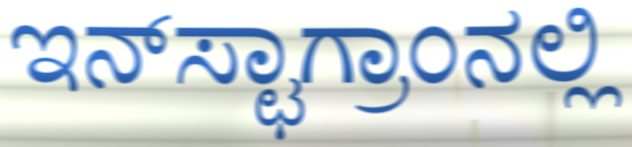
ಇನ್‌ಸ್ಟಾಗ್ರಾಂನಲ್ಲಿ